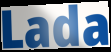
Lada